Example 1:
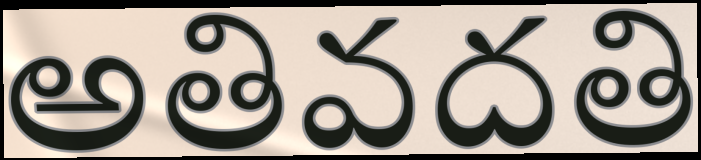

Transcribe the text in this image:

అతివదతి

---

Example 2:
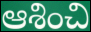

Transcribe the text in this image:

ఆశించి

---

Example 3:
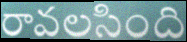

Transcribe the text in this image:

రావలసింది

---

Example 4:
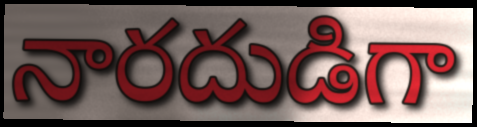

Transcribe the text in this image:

నారదుడిగా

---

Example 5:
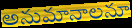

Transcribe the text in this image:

అనుమానాలనూ